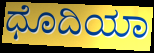
ಧೊದಿಯಾ